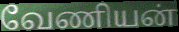
வேணியன்